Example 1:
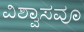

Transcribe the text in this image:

ವಿಶ್ವಾಸವೂ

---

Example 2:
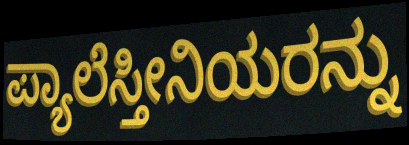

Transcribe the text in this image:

ಪ್ಯಾಲೆಸ್ತೀನಿಯರನ್ನು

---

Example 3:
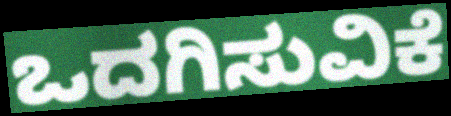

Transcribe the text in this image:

ಒದಗಿಸುವಿಕೆ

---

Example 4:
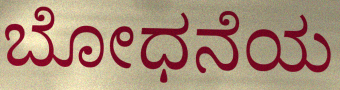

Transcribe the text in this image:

ಬೋಧನೆಯ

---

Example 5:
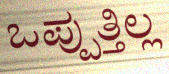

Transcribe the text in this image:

ಒಪ್ಪುತ್ತಿಲ್ಲ